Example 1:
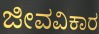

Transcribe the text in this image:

ಜೀವವಿಕಾರ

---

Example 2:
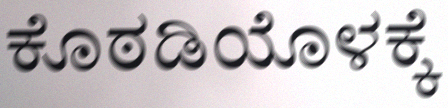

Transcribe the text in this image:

ಕೊಠಡಿಯೊಳಕ್ಕೆ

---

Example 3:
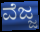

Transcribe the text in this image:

ವೆಜ್ಜ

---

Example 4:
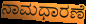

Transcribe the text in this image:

ನಾಮಧಾರಣೆ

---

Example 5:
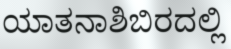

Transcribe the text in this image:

ಯಾತನಾಶಿಬಿರದಲ್ಲಿ